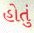
હોતું